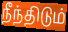
நீந்திடும்